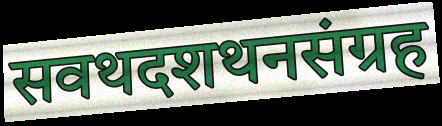
सवथदशथनसंग्रह